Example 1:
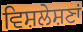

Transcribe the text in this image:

ਵਿਸ਼ਲੇਸ਼ਣਾਂ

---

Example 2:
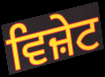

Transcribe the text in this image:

ਵਿਜ਼ੇਟ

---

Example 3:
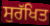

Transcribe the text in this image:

ਸੁਰੱਖਿਤ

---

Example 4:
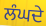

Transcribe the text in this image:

ਲੰਘਦੇ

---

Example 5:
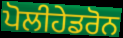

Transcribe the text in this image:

ਪੋਲੀਹੇਡਰੋਨ